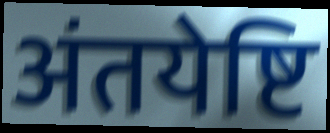
अंतयेष्टि